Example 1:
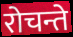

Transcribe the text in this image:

रोचन्ते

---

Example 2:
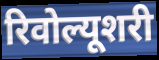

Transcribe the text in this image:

रिवोल्यूशरी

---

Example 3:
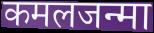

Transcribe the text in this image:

कमलजन्मा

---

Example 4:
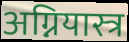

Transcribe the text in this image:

अग्नियास्त्र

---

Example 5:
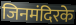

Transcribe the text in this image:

जिनमंदिरके